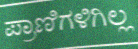
ಪ್ರಾಣಿಗಳಿಗಿಲ್ಲ